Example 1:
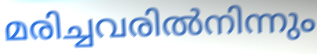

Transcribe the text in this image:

മരിച്ചവരിൽനിന്നും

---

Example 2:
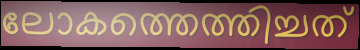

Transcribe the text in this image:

ലോകത്തെത്തിച്ചത്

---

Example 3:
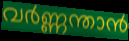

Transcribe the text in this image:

വർണ്ണന്താൻ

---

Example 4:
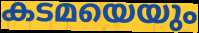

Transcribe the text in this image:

കടമയെയും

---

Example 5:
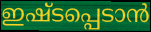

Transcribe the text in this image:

ഇഷ്ടപ്പെടാൻ